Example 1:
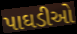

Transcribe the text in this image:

પાઘડીઓ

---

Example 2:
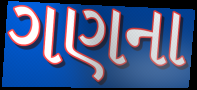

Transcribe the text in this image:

ગણના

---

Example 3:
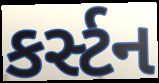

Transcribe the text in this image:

કર્સ્ટન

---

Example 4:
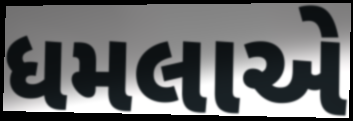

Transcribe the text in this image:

ધમલાએ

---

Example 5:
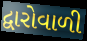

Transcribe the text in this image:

દ્વારોવાળી